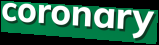
coronary